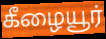
கீழையூர்